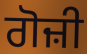
ਗੋਜ਼ੀ